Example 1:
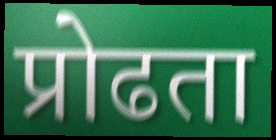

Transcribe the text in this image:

प्रोढता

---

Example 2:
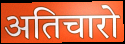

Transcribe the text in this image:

अतिचारो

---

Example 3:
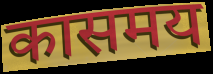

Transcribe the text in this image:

कासमय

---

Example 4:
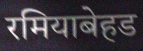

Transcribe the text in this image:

रमियाबेहड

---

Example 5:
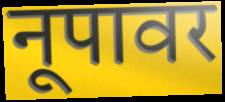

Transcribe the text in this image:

नूपावर